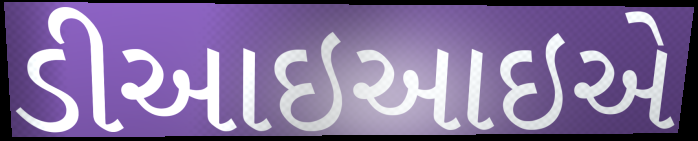
ડીઆઇઆઇએ